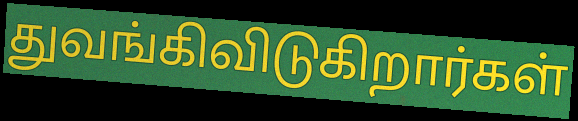
துவங்கிவிடுகிறார்கள்